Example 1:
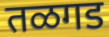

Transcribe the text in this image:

तळगड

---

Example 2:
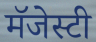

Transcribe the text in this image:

मॅजेस्टी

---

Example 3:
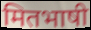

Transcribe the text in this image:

मितभाषी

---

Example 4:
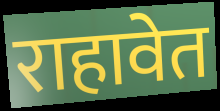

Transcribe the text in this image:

राहावेत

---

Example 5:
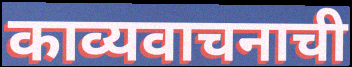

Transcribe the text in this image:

काव्यवाचनाची